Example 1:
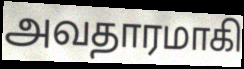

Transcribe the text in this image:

அவதாரமாகி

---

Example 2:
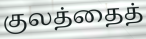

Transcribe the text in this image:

குலத்தைத்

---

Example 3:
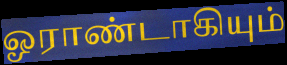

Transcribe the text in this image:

ஓராண்டாகியும்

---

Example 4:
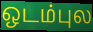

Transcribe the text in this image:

ஒடம்புல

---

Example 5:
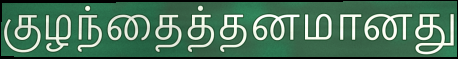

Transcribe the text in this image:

குழந்தைத்தனமானது